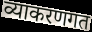
व्याकरणगत